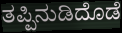
ತಪ್ಪಿನುಡಿದೊಡೆ